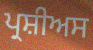
ਪ੍ਰਸ਼ੀਅਸ